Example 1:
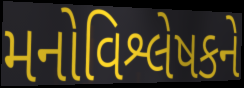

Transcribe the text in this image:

મનોવિશ્લેષકને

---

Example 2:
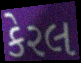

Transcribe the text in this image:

કેરલ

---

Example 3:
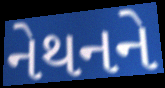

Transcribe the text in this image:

નેથનને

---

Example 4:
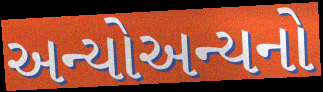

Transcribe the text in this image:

અન્યોઅન્યનો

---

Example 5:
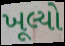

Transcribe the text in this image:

ખૂલ્યો